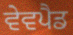
ਵੇਵਪੈਡ